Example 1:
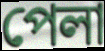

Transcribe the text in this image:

পেলা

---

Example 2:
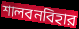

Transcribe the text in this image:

শালবনবিহার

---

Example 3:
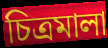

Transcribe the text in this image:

চিত্রমালা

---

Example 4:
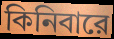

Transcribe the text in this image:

কিনিবারে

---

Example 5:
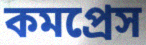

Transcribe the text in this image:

কমপ্রেস